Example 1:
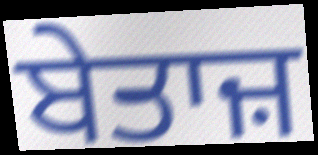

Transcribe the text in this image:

ਬੇਤਾਜ਼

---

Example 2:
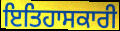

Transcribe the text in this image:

ਇਤਿਹਾਸਕਾਰੀ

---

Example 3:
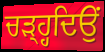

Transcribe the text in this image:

ਚੜ੍ਹ੍ਹਦਿਉਂ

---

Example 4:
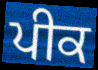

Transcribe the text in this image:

ਪੀਕ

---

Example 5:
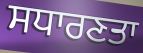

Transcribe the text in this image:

ਸਧਾਰਣਤਾ